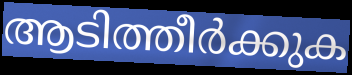
ആടിത്തീർക്കുക